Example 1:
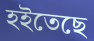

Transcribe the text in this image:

হইতেছে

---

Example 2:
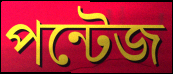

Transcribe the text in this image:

পন্টেজ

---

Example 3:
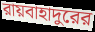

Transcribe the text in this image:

রায়বাহাদুরের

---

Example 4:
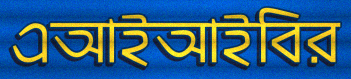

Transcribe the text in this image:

এআইআইবির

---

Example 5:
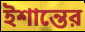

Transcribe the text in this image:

ইশান্তের